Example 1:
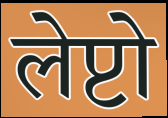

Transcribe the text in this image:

लेप्टो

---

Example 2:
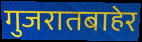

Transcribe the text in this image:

गुजरातबाहेर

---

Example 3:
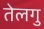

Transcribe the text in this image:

तेलगु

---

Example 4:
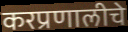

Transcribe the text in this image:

करप्रणालीचे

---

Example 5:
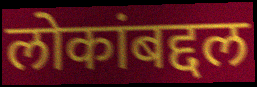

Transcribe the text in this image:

लोकांबद्दल